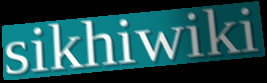
sikhiwiki